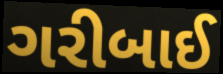
ગરીબાઈ